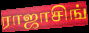
ராஜாசிங்